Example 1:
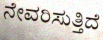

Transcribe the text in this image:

ನೇವರಿಸುತ್ತಿದೆ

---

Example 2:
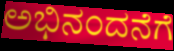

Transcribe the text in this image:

ಅಭಿನಂದನೆಗೆ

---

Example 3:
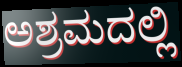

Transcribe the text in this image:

ಅಶ್ರಮದಲ್ಲಿ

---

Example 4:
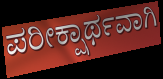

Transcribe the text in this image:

ಪರೀಕ್ಷಾರ್ಥವಾಗಿ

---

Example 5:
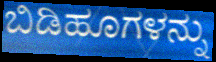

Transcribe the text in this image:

ಬಿಡಿಹೂಗಳನ್ನು